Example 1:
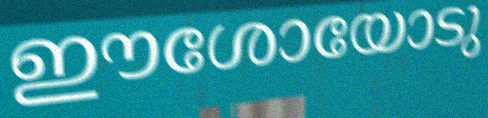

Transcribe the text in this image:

ഈശോയോടു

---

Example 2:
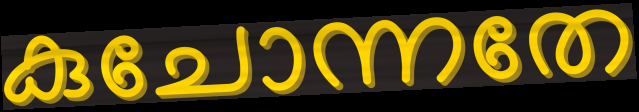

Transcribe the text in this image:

കുചോന്നതേ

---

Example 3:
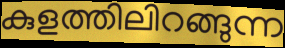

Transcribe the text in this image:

കുളത്തിലിറങ്ങുന്ന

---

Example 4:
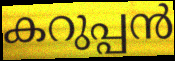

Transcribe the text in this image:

കറുപ്പൻ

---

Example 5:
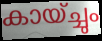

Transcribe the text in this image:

കായ്ച്ചും